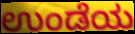
ಉಂಡೆಯ